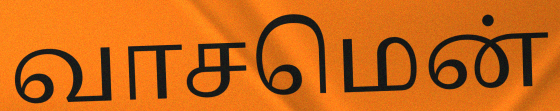
வாசமென்